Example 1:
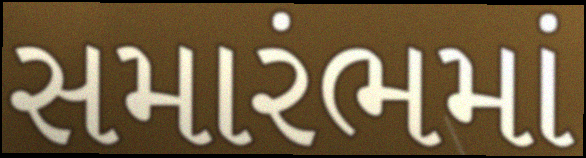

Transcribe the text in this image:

સમારંભમાં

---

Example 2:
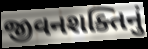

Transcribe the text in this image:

જીવનશક્તિનું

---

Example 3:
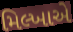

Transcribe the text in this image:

મિલ્ખાએ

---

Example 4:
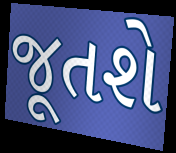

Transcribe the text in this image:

જૂતશે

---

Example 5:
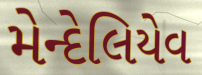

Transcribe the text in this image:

મેન્દેલિયેવ